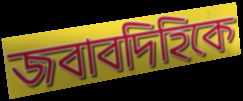
জবাবদিহিকে